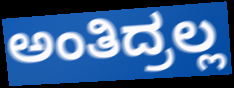
ಅಂತಿದ್ರಲ್ಲ